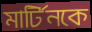
মার্টিনকে